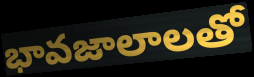
భావజాలాలతో